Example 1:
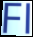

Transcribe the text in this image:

FI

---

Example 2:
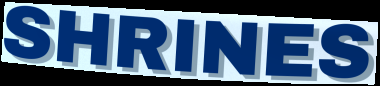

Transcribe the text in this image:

SHRINES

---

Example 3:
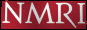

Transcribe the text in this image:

NMRI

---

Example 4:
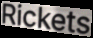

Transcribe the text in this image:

Rickets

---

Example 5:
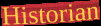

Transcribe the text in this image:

Historian